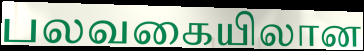
பலவகையிலான